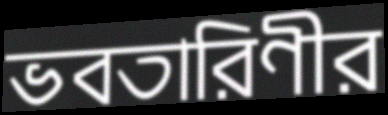
ভবতারিণীর